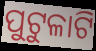
ପୁଟୁଳାଟି